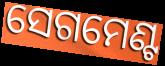
ସେଗମେଣ୍ଟ